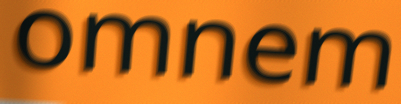
omnem